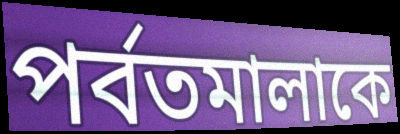
পর্বতমালাকে